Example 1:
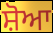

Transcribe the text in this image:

ਸ਼ੋਆ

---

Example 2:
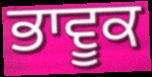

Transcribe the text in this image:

ਭਾਵੂਕ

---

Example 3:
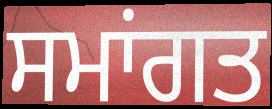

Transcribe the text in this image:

ਸਮਾਂਗਤ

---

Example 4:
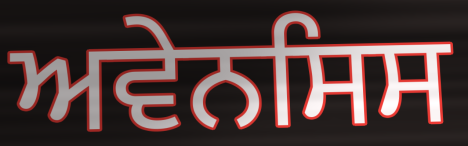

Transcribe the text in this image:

ਅਵੇਨਸਿਸ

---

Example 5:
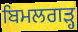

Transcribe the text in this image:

ਬਿਮਲਗੜ੍ਹ